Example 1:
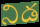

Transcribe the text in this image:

నిడ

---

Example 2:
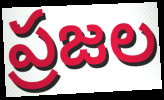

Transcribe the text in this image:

ప్రజల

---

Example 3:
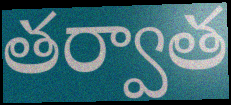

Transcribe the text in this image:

తర్వాత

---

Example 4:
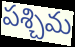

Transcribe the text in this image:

పశ్చిమ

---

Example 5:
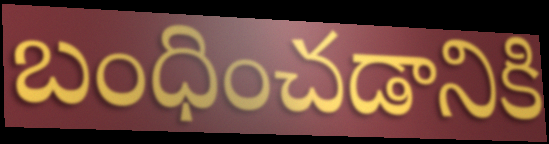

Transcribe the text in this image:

బంధించడానికి